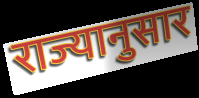
राज्यानुसार